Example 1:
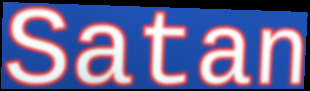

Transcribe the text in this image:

Satan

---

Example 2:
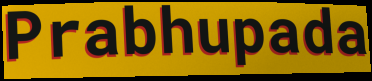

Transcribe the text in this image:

Prabhupada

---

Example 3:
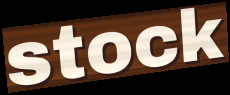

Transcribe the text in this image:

stock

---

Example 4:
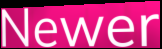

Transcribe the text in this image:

Newer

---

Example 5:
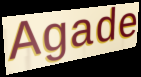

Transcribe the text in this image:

Agade